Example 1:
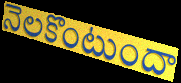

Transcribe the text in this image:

నెలకొంటుందా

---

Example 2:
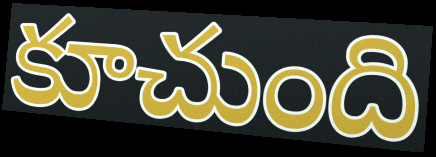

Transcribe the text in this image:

కూచుంది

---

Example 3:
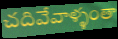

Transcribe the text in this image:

చదివేవాళ్ళంతా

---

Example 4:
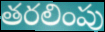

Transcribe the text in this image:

తరలింపు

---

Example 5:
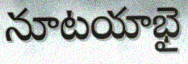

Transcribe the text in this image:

నూటయాభై